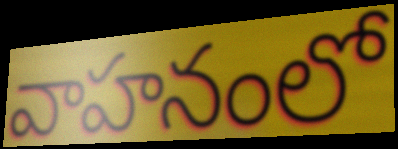
వాహనంలో